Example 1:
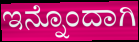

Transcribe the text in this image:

ಇನ್ನೊಂದಾಗಿ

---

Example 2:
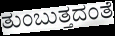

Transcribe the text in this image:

ತುಂಬುತ್ತದಂತೆ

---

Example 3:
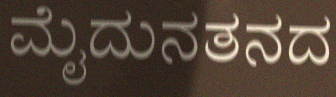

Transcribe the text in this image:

ಮೈದುನತನದ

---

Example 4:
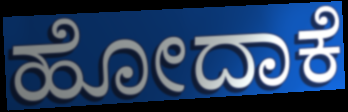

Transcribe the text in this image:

ಹೋದಾಕೆ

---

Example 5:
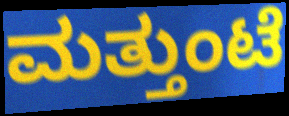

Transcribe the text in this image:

ಮತ್ತುಂಟೆ